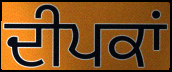
ਦੀਪਕਾਂ